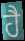
ਹੈ